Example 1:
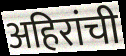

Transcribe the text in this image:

अहिरांची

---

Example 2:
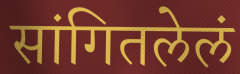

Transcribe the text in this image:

सांगितलेलं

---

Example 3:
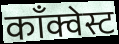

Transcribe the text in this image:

काँक्वेस्ट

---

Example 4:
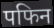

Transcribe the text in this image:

पफिन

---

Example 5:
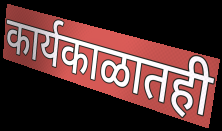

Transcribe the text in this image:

कार्यकाळातही